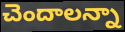
చెందాలన్నా